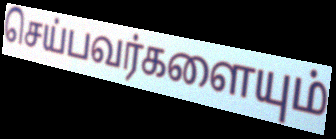
செய்பவர்களையும்